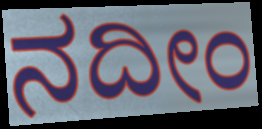
ನದೀಂ